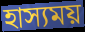
হাস্যময়